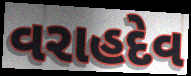
વરાહદેવ